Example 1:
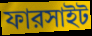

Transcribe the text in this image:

ফারসাইট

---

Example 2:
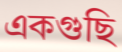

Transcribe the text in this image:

একগুছি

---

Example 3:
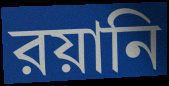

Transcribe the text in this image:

রয়ানি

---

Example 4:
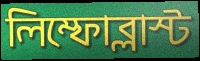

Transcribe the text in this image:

লিম্ফোব্লাস্ট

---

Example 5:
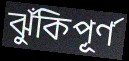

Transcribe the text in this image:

ঝুঁকিপূর্ণ